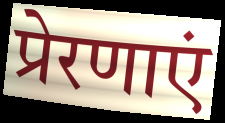
प्रेरणाएं